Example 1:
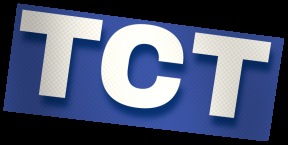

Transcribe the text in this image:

TCT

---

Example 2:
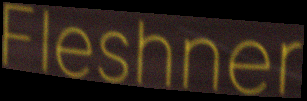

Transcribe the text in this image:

Fleshner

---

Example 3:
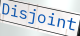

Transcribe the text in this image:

Disjoint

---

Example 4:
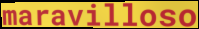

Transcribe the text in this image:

maravilloso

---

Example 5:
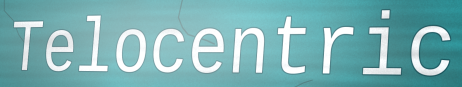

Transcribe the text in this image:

Telocentric